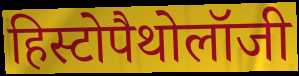
हिस्टोपैथोलॉजी